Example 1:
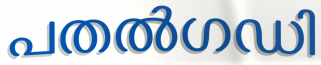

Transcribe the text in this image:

പതൽഗഡി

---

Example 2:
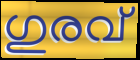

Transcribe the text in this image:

ഗുരവ്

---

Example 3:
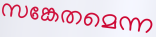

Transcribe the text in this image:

സങ്കേതമെന്ന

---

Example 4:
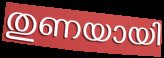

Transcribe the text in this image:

തുണയായി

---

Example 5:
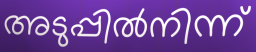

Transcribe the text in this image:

അടുപ്പിൽനിന്ന്